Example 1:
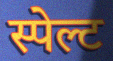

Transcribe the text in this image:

स्पेल्ट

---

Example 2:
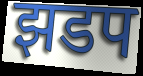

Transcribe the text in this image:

झडप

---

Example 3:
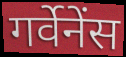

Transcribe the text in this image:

गर्वेनेंस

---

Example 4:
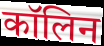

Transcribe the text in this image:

कॉलिन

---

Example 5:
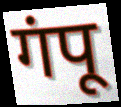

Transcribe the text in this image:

गंपू